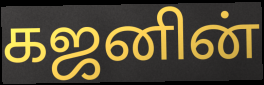
கஜனின்